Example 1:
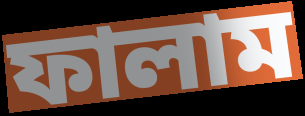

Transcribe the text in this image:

ফালাম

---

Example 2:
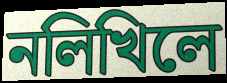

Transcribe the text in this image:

নলিখিলে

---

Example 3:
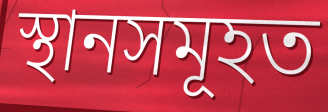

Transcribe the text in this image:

স্থানসমূহত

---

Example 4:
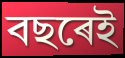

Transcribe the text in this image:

বছৰেই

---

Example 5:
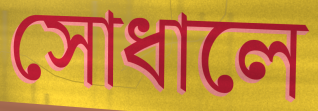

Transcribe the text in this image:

সোধালে